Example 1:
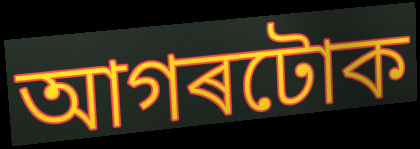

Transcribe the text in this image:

আগৰটোক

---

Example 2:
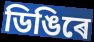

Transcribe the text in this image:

ডিঙিৰে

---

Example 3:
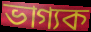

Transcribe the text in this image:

ভাগ্যক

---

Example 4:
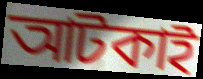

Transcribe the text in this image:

আটকাই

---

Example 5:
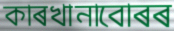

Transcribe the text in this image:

কাৰখানাবোৰৰ